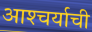
आश्‍चर्याची